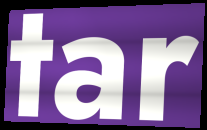
tar